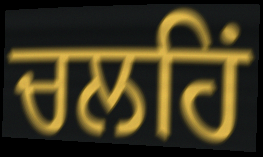
ਚਲਹਿਂ